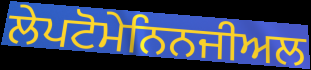
ਲੇਪਟੋਮੇਨਿਨਜੀਅਲ